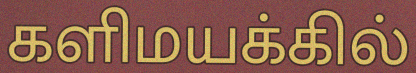
களிமயக்கில்